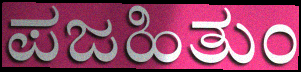
ಪಜಹಿತುಂ